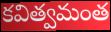
కవిత్వమంత